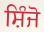
ਸ਼ਿੰਜੋ